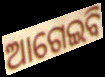
ଆଗେଇବି